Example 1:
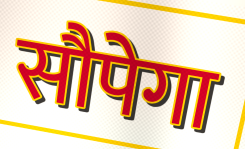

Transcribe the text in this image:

सौपेगा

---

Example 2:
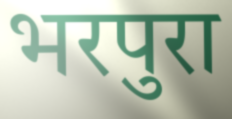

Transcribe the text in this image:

भरपुरा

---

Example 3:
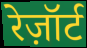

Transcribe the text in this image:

रेज़ॉर्ट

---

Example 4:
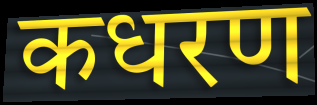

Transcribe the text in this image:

कधरण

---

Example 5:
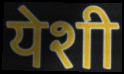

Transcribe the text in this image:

येशी